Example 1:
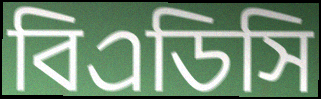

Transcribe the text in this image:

বিএডিসি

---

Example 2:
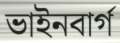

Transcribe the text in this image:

ভাইনবার্গ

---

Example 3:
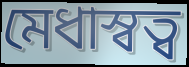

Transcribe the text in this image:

মেধাস্বত্ব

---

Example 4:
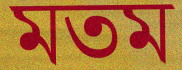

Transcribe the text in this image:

মতম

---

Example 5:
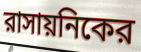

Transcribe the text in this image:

রাসায়নিকের